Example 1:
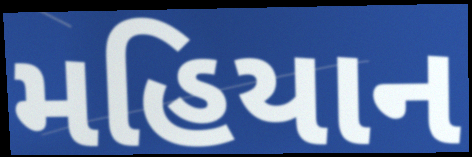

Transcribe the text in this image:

મહિયાન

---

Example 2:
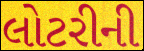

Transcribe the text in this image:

લોટરીની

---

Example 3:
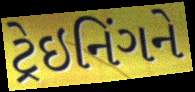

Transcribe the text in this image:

ટ્રેઇનિંગને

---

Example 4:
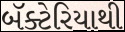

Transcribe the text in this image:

બૅક્ટેરિયાથી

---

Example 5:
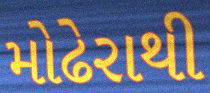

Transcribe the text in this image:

મોઢેરાથી